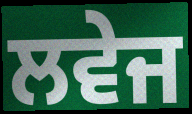
ਲਵੇਜ